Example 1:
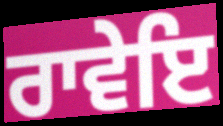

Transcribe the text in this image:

ਰਾਵੇਇ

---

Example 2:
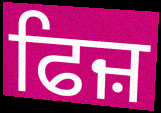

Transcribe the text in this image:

ਫਿਜ਼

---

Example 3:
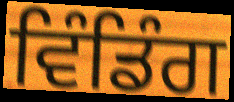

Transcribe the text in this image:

ਵਿੰਡਿੰਗ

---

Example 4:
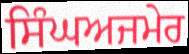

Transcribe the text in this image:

ਸਿੰਘਅਜਮੇਰ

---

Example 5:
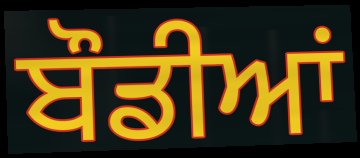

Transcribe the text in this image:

ਬੌਡੀਆਂ